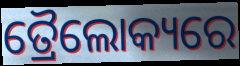
ତ୍ରୈଲୋକ୍ୟରେ